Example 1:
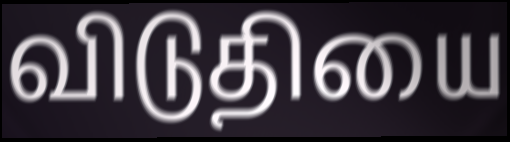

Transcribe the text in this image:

விடுதியை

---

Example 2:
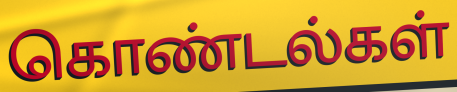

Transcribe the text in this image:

கொண்டல்கள்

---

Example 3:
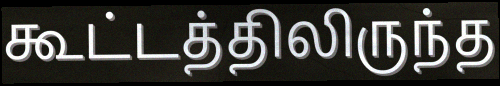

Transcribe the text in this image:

கூட்டத்திலிருந்த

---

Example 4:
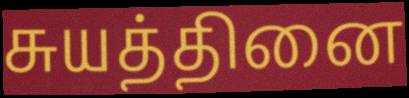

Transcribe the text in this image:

சுயத்தினை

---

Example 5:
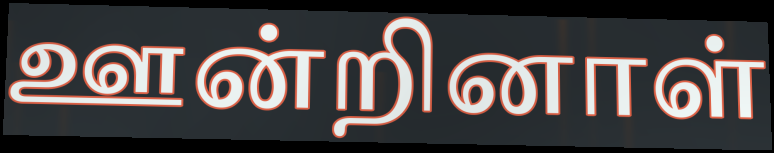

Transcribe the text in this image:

ஊன்றினாள்